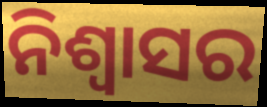
ନିଶ୍ବାସର